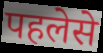
पहलेसे